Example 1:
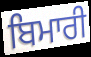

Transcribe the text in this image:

ਬਿਮਾਰੀ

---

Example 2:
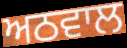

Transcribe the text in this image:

ਅਠਵਾਲ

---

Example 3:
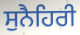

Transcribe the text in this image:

ਸੁਨੈਹਿਰੀ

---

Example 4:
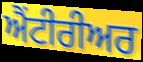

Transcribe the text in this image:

ਐਂਟੀਰੀਅਰ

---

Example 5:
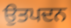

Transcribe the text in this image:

ਉਤਪਦਨ